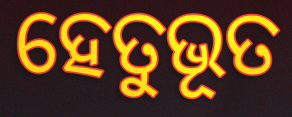
ହେତୁଭୂତ